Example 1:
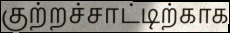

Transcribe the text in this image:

குற்றச்சாட்டிற்காக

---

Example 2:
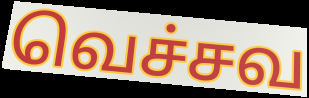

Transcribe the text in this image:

வெச்சவ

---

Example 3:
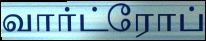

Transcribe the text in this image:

வார்ட்ரோப்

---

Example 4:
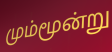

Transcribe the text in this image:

மும்மூன்று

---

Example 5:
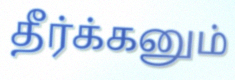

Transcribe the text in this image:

தீர்க்கனும்